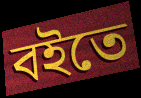
বইতে